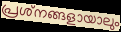
പ്രശ്‌നങ്ങളായാലും